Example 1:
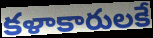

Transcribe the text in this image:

కళాకారులకే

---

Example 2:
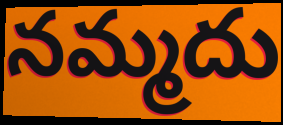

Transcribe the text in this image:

నమ్మదు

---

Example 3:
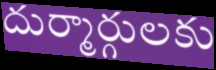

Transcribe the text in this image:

దుర్మార్గులకు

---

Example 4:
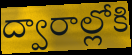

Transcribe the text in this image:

ద్వారాల్లోకి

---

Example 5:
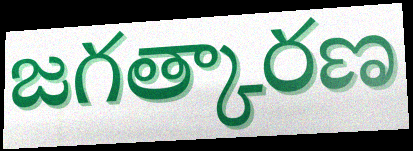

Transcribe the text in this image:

జగత్కారణ